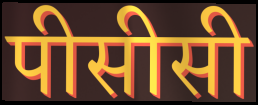
पीसीसी